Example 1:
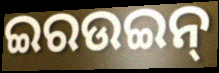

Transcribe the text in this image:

ଇରଉଇନ୍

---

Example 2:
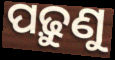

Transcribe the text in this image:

ପଢ଼ୁଣୁ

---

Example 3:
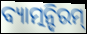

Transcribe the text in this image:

ବ୍ୟାତ୍ମନ୍ଦିରମ୍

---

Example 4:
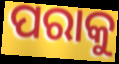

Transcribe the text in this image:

ପରାକୁ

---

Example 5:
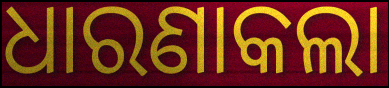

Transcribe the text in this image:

ଧାରଣାକଲା